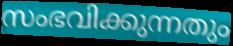
സംഭവിക്കുന്നതും